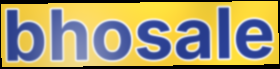
bhosale